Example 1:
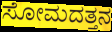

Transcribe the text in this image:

ಸೋಮದತ್ತನ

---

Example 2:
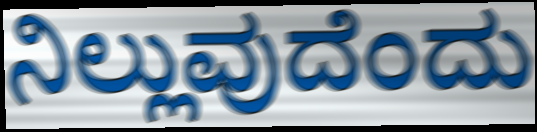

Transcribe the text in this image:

ನಿಲ್ಲುವುದೆಂದು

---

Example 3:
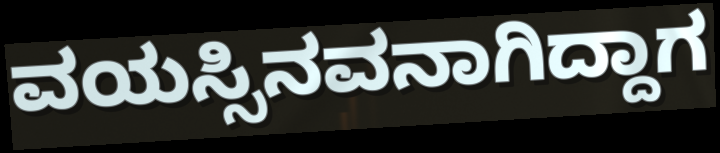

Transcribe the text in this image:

ವಯಸ್ಸಿನವನಾಗಿದ್ದಾಗ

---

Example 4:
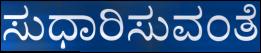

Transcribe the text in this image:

ಸುಧಾರಿಸುವಂತೆ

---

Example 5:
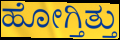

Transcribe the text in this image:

ಹೋಗ್ತಿತ್ತು